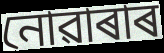
নোৱাৰাৰ